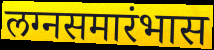
लग्नसमारंभास